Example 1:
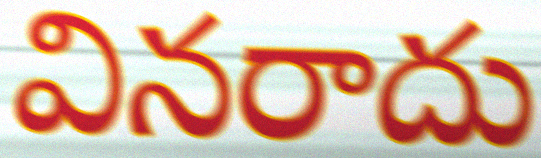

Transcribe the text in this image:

వినరాదు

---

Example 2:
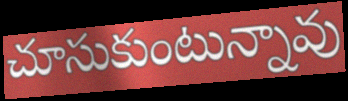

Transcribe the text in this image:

చూసుకుంటున్నావు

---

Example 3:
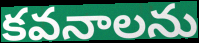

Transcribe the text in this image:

కవనాలను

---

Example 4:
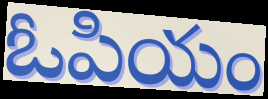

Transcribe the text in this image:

ఓపియం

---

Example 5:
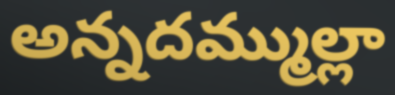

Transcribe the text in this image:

అన్నదమ్ముల్లా